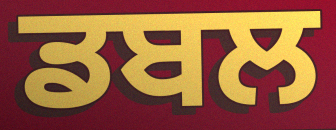
ਡਬਲ